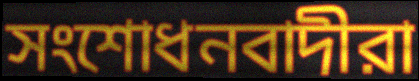
সংশোধনবাদীরা